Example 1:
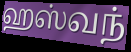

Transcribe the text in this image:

ஹஸ்வந்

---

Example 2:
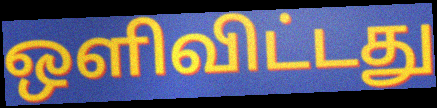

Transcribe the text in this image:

ஒளிவிட்டது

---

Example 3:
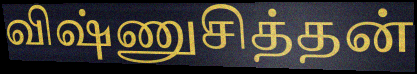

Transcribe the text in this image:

விஷ்ணுசித்தன்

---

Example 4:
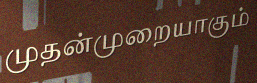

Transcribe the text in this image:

முதன்முறையாகும்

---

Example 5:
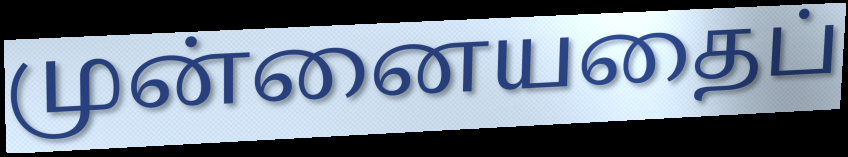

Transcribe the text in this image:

முன்னையதைப்